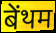
बेंथम